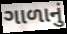
ગાળાનું